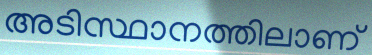
അടിസ്ഥാനത്തിലാണ്